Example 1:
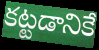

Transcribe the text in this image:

కట్టడానికే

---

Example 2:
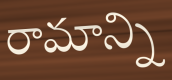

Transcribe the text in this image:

రామాన్ని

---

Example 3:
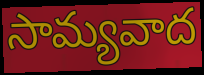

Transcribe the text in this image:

సామ్యవాద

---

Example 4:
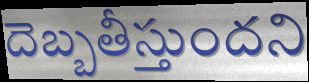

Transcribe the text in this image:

దెబ్బతీస్తుందని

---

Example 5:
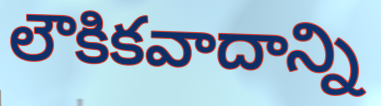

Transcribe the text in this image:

లౌకికవాదాన్ని